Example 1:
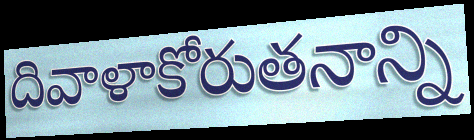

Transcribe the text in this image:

దివాళాకోరుతనాన్ని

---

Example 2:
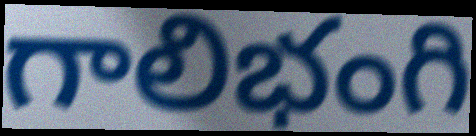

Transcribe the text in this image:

గాలిభంగి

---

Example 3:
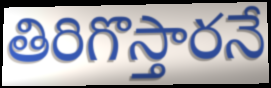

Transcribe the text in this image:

తిరిగొస్తారనే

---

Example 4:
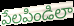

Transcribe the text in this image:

పేలపిండిలా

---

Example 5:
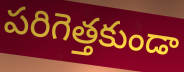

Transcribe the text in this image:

పరిగెత్తకుండా